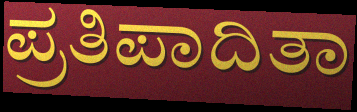
ಪ್ರತಿಪಾದಿತಾ